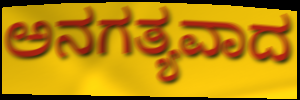
ಅನಗತ್ಯವಾದ